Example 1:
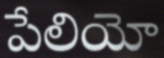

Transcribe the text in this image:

పేలియో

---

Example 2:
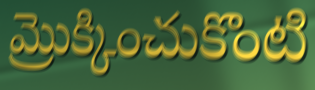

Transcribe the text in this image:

మ్రొక్కించుకొంటి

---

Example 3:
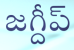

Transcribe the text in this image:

జగ్దీప్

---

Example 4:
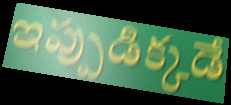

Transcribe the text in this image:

ఇప్పుడిక్కడే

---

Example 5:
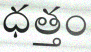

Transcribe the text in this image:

ధత్తం